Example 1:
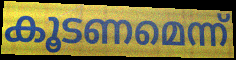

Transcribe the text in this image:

കൂടണമെന്ന്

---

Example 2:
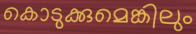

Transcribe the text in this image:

കൊടുക്കുമെങ്കിലും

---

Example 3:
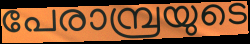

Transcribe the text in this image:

പേരാമ്പ്രയുടെ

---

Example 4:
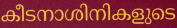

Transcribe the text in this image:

കീടനാശിനികളുടെ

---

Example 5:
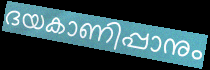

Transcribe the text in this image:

ദയകാണിപ്പാനും